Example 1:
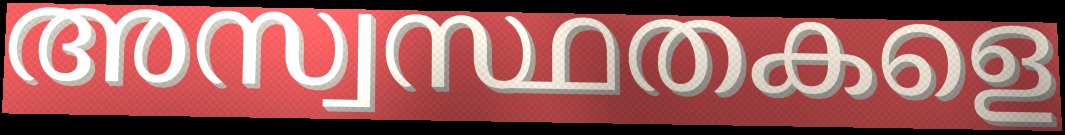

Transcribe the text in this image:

അസ്വസ്ഥതകളെ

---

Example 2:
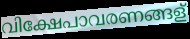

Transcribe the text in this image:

വിക്ഷേപാവരണങ്ങള്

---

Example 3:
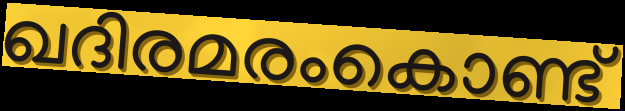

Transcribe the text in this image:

ഖദിരമരംകൊണ്ട്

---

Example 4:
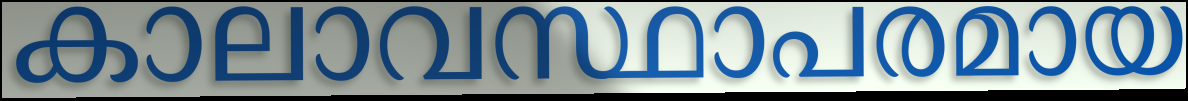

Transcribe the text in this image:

കാലാവസ്ഥാപരമായ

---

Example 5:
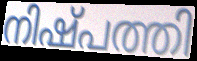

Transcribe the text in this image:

നിഷ്പത്തി